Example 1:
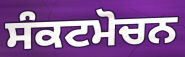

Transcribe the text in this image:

ਸੰਕਟਮੋਚਨ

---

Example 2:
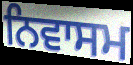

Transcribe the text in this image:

ਨਿਵਾਸਮ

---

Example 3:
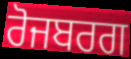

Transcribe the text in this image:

ਰੋਜਬਰਗ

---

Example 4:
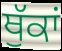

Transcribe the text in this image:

ਥੁੱਕਾਂ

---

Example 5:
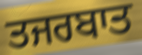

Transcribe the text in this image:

ਤਜਰਬਾਤ